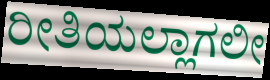
ರೀತಿಯಲ್ಲಾಗಲೀ